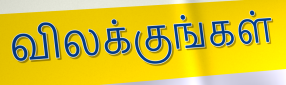
விலக்குங்கள்